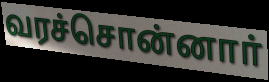
வரச்சொன்னார்